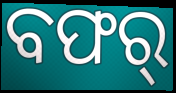
ବଫର୍